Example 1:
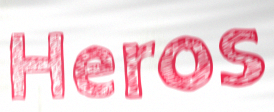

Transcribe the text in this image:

Heros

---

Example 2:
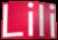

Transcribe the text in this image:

Lili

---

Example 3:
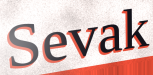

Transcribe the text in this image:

Sevak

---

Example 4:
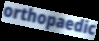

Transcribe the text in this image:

orthopaedic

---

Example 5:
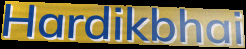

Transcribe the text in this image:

Hardikbhai